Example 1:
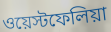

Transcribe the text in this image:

ওয়েস্টফেলিয়া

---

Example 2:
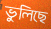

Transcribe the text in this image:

ভুলিছে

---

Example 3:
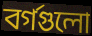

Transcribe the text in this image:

বর্গগুলো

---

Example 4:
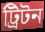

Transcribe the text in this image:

ট্রিটন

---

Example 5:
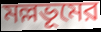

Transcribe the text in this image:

মল্লভূমের